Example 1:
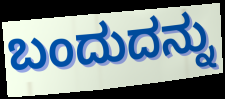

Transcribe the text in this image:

ಬಂದುದನ್ನು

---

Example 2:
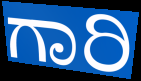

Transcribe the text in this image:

ಗಾರಿ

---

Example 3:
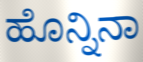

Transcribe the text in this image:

ಹೊನ್ನಿನಾ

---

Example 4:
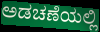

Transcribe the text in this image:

ಅಡಚಣೆಯಲ್ಲಿ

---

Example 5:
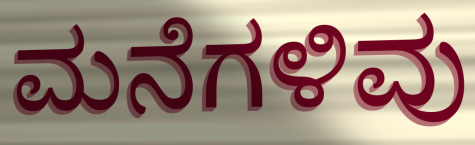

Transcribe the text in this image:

ಮನೆಗಳಿವು